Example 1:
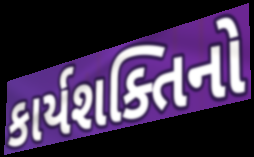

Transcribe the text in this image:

કાર્યશક્તિનો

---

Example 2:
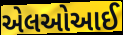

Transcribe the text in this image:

એલઓઆઈ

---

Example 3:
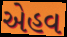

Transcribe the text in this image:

એહવ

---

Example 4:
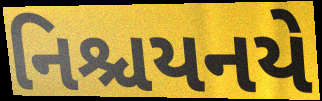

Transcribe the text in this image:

નિશ્ચયનયે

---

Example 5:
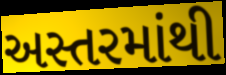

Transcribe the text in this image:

અસ્તરમાંથી